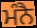
ਮੰਨੈ